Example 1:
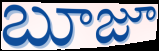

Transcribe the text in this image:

బూజూ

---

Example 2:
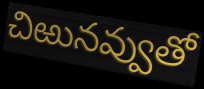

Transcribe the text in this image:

చిఱునవ్వుతో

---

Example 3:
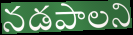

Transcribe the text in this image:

నడపాలని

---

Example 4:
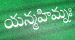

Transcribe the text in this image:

యన్మహిమ్నః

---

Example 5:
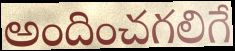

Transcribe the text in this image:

అందించగలిగే